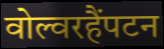
वोल्वरहैंपटन